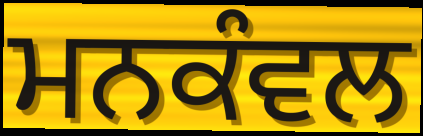
ਮਨਕੰਵਲ